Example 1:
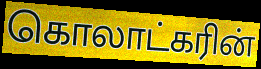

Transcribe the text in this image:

கொலாட்கரின்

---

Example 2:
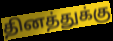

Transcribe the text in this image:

தினத்துக்கு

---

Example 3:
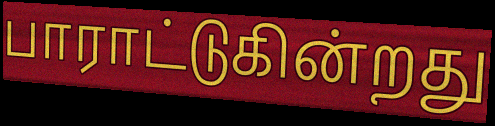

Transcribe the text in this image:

பாராட்டுகின்றது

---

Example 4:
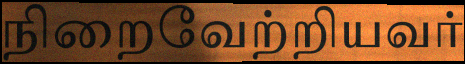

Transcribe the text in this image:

நிறைவேற்றியவர்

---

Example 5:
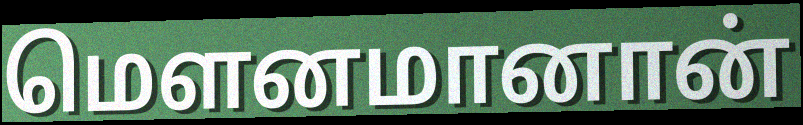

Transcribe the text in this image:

மௌனமானான்